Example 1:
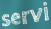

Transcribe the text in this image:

servi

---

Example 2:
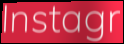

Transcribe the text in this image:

Instagr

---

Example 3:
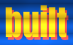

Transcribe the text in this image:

built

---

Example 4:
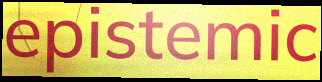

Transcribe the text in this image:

epistemic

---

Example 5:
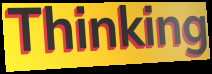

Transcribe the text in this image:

Thinking